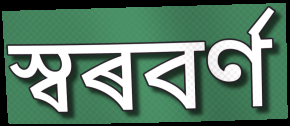
স্বৰবৰ্ণ